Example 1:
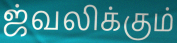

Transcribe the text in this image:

ஜ்வலிக்கும்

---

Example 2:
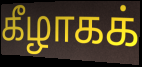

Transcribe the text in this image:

கீழாகக்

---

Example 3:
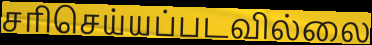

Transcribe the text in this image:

சரிசெய்யப்படவில்லை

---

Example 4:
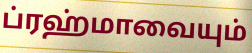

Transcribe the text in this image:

ப்ரஹ்மாவையும்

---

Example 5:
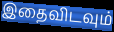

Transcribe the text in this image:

இதைவிடவும்